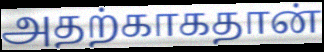
அதற்காகதான்